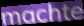
machte